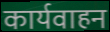
कार्यवाहन